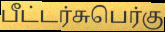
பீட்டர்சுபெர்கு